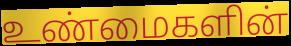
உண்மைகளின்